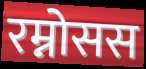
रम्नोसस